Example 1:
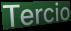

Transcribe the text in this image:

Tercio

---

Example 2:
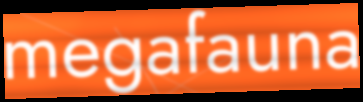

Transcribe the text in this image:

megafauna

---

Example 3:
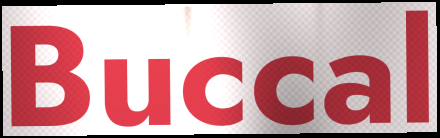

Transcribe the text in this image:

Buccal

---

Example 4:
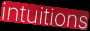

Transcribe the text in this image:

intuitions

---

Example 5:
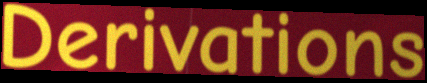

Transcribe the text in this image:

Derivations